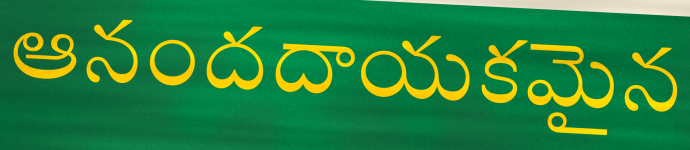
ఆనందదాయకమైన